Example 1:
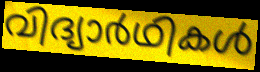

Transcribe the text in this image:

വിദ്യാർഥികൾ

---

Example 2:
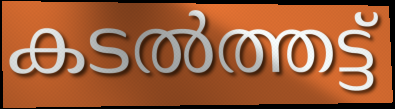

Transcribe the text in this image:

കടൽത്തട്ട്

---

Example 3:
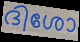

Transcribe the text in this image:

ദിശോ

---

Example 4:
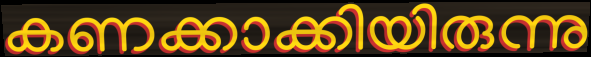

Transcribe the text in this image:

കണക്കാക്കിയിരുന്നു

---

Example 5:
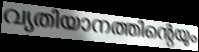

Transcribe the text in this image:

വ്യതിയാനത്തിന്റെയും